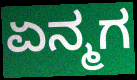
ಏನ್ಮಗ